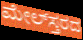
ಮೇಲ್‌ಸ್ತರದ